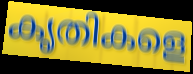
കൃതികളെ